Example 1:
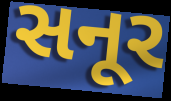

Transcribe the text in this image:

સનૂર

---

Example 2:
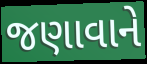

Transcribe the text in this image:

જણાવાને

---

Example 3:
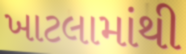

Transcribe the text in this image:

ખાટલામાંથી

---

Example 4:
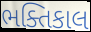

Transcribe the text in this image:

ભક્તિકાલ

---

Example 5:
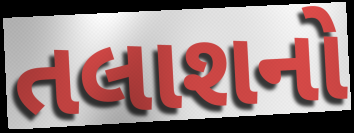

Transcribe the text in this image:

તલાશનો